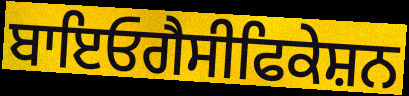
ਬਾਇਓਗੈਸੀਫਿਕੇਸ਼ਨ